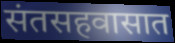
संतसहवासात